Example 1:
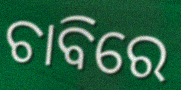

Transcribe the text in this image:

ଚାବିରେ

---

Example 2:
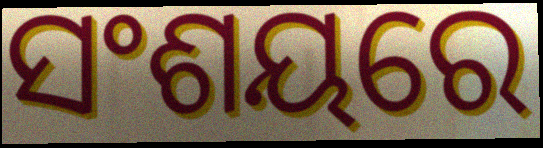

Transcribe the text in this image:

ସଂଶୟରେ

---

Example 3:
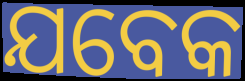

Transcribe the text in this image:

ଯବେକ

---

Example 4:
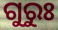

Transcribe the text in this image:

ଗୁରୁଃ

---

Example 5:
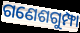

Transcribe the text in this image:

ଗଣେଶଗୁମ୍ଫା